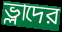
ভ্লাদের